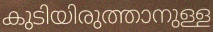
കുടിയിരുത്താനുള്ള